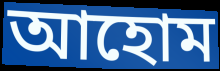
আহোম